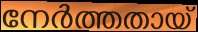
നേർത്തതായ്